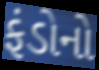
ફંડોનો